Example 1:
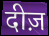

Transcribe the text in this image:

दीज़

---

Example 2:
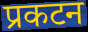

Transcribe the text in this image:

प्रकटन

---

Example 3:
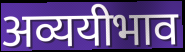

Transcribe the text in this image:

अव्ययीभाव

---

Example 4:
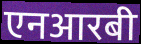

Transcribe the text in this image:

एनआरबी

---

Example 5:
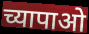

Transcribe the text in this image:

च्यापाओ